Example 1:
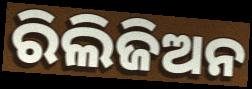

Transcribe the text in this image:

ରିଲିଜିଅନ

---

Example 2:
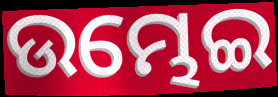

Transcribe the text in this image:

ଉମ୍ଭେଇ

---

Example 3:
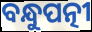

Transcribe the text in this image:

ବନ୍ଧୁପତ୍ନୀ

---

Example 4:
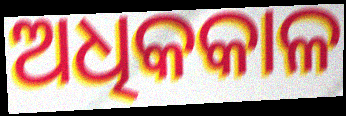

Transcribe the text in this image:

ଅଧିକକାଳ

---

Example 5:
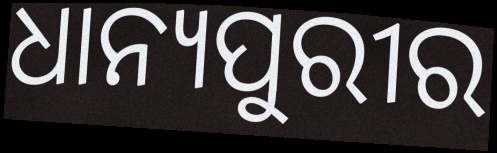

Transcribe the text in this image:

ଧାନ୍ୟପୁରୀର